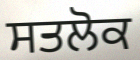
ਸਤਲੋਕ